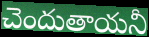
చెందుతాయనీ